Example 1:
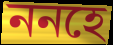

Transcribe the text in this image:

ননহে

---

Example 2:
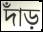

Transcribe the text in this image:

দাঁড়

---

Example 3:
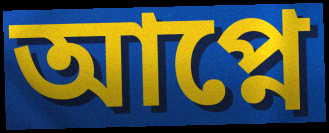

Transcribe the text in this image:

আপ্নে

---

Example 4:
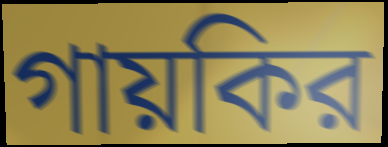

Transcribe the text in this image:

গায়কির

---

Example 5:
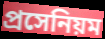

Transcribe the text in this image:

প্রসেনিয়ম